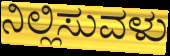
ನಿಲ್ಲಿಸುವಳು